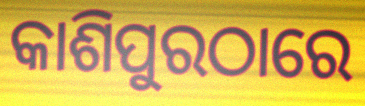
କାଶିପୁରଠାରେ